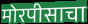
मोरपीसाचा